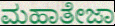
ಮಹಾತೇಜಾ